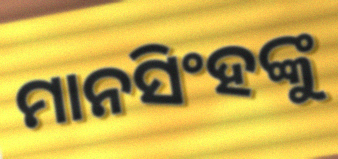
ମାନସିଂହଙ୍କୁ